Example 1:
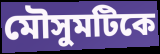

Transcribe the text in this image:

মৌসুমটিকে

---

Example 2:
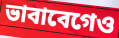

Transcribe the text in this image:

ভাবাবেগেও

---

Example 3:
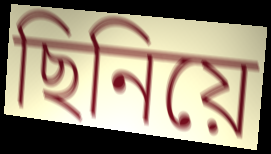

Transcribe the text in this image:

ছিনিয়ে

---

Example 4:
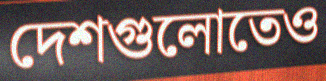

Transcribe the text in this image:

দেশগুলোতেও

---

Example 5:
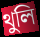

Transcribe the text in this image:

থুলি